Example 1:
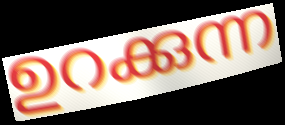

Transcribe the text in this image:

ഉറക്കുന്ന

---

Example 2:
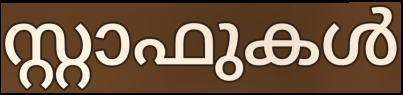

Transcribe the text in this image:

സ്റ്റാഫുകൾ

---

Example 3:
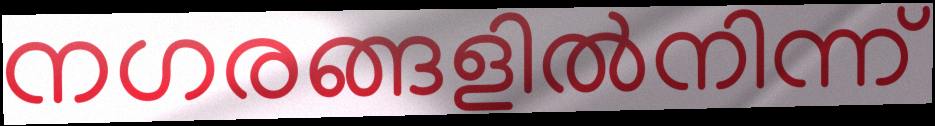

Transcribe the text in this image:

നഗരങ്ങളിൽനിന്ന്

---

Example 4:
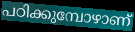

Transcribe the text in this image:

പഠിക്കുമ്പോഴാണ്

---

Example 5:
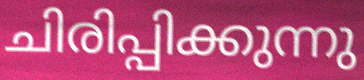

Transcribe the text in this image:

ചിരിപ്പിക്കുന്നു